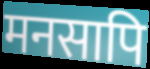
मनसापि